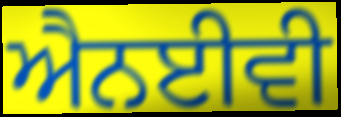
ਐਨਈਵੀ